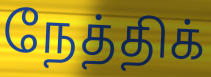
நேத்திக்